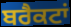
ਬਰੈਕਟਾਂ